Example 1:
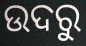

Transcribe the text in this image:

ଉଦରୁ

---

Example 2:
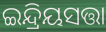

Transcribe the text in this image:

ଇନ୍ଦ୍ରିୟସତ୍ତା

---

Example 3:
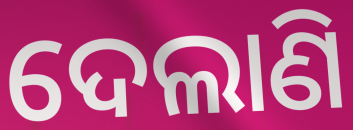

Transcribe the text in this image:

ଦେଲାଣି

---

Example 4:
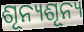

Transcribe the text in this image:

ଶୂନ୍ୟଶୂନ୍ୟ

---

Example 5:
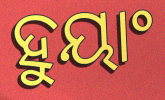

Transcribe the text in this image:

ହୁୟାଂ